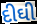
દીઘી